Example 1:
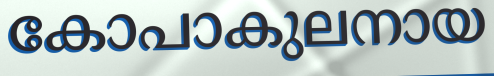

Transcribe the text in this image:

കോപാകുലനായ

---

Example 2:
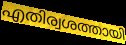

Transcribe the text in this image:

എതിര്വശത്തായി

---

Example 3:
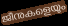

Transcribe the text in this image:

ജീനുകളെയും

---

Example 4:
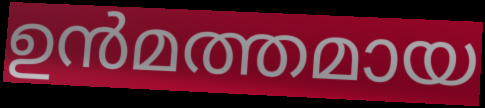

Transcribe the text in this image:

ഉൻമത്തമായ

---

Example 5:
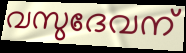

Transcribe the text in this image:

വസുദേവന്